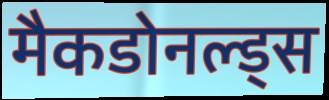
मैकडोनल्ड्स